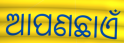
ଆପଣଛାଏଁ